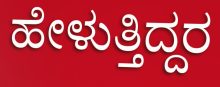
ಹೇಳುತ್ತಿದ್ದರ